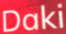
Daki